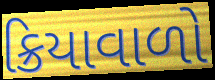
ક્રિયાવાળો